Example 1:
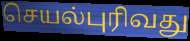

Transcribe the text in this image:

செயல்புரிவது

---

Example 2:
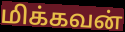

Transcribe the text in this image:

மிக்கவன்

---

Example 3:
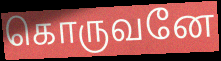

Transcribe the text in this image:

கொருவனே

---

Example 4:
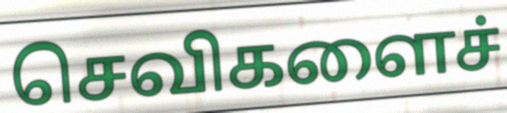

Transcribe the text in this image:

செவிகளைச்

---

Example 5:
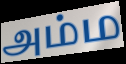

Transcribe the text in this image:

அம்ம